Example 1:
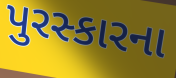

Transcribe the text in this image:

પુરસ્કારના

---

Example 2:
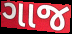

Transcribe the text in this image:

ગાજ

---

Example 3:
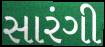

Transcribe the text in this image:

સારંગી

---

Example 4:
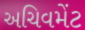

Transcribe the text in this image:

અચિવમેંટ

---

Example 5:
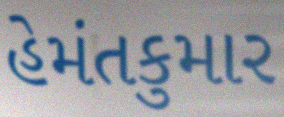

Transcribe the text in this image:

હેમંતકુમાર